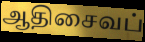
ஆதிசைவப்